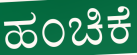
ಹಂಚಿಕೆ